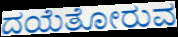
ದಯೆತೋರುವ